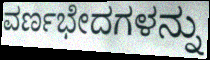
ವರ್ಣಭೇದಗಳನ್ನು